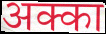
अक्का